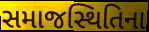
સમાજસ્થિતિના